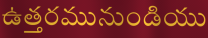
ఉత్తరమునుండియు